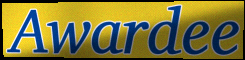
Awardee